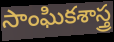
సాంఘికశాస్త్ర